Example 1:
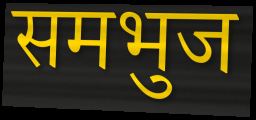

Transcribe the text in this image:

समभुज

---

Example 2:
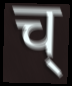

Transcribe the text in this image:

च्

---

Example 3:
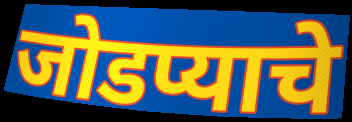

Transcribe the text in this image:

जोडप्याचे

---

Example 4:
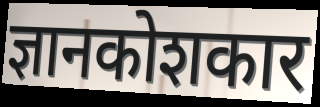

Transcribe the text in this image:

ज्ञानकोशकार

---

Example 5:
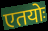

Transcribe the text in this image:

एतयोः